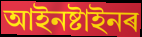
আইনষ্টাইনৰ